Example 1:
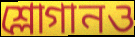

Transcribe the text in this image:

শ্লোগানও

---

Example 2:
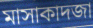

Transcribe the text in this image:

মাসাকাদজা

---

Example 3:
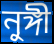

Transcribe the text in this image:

নুঙ্গী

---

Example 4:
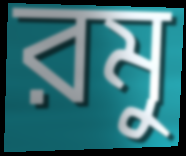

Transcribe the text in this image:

রমু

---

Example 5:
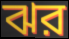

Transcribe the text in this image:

ঝর